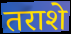
तराशे